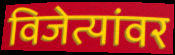
विजेत्यांवर